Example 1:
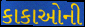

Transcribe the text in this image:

કાકાઓની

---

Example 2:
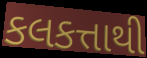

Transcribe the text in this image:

કલકત્તાથી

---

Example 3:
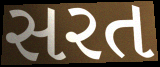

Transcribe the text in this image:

સરત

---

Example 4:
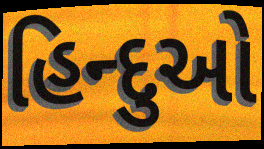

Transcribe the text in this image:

હિન્દુઓ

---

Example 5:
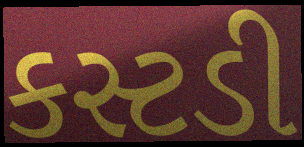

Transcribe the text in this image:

કસ્ટડી